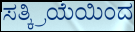
ಸತ್ಕ್ರಿಯೆಯಿಂದ